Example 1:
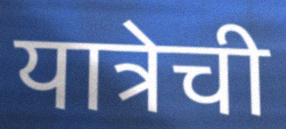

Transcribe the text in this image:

यात्रेची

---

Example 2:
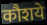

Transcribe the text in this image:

कौशये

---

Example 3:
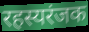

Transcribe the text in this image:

रहस्यरंजक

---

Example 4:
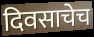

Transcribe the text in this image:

दिवसाचेच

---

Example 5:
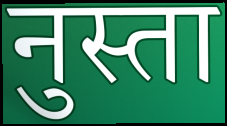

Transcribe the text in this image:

नुस्ता